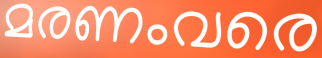
മരണംവരെ